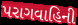
પરાગવાહિની